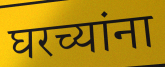
घरच्यांना